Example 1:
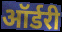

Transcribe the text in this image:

ऑर्डरी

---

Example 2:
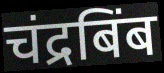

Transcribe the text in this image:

चंद्रबिंब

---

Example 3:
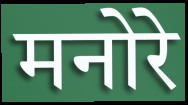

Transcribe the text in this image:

मनोरे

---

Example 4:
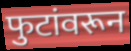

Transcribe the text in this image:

फुटांवरून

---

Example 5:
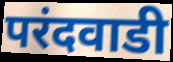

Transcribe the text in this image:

परंदवाडी